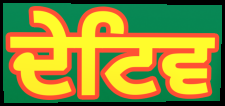
ਦੇਟਿਵ